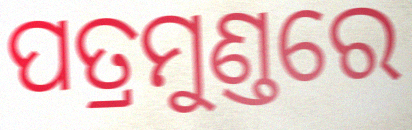
ପତ୍ରମୁଣ୍ଡରେ